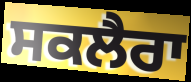
ਸਕਲੈਰਾ